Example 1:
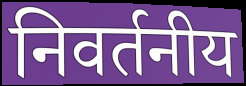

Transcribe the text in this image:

निवर्तनीय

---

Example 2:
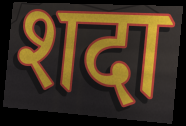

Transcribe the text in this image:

शदा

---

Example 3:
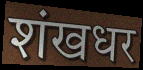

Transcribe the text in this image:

शंखधर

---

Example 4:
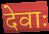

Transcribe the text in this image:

देवाः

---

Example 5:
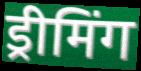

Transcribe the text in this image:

ड्रीमिंग